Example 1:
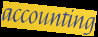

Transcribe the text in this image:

accounting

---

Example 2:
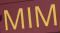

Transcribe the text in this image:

MIM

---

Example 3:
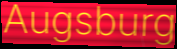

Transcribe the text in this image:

Augsburg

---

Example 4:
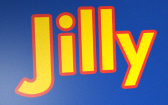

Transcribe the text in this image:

Jilly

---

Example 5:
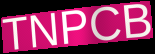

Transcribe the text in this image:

TNPCB